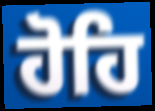
ਹੋਹਿ